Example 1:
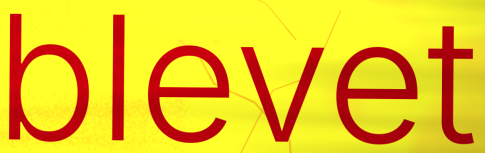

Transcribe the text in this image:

blevet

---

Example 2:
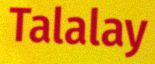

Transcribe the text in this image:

Talalay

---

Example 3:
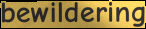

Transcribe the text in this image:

bewildering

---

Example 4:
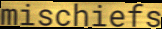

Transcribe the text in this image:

mischiefs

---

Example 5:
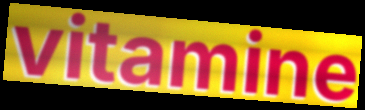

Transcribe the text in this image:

vitamine